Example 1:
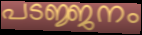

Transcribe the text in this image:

പടജ്ജനം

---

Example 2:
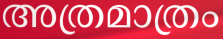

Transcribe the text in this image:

അത്രമാത്രം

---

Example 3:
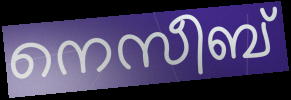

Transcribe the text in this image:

നെസീബ്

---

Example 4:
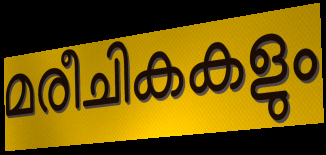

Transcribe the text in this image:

മരീചികകളും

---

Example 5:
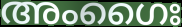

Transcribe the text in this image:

അംഗൈഃ